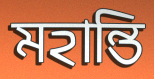
মহান্তি